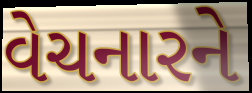
વેચનારને